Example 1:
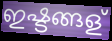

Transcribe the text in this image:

ഇഷ്ടങ്ങള്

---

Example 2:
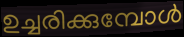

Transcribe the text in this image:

ഉച്ചരിക്കുമ്പോൾ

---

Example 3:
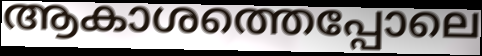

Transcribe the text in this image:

ആകാശത്തെപ്പോലെ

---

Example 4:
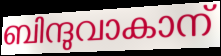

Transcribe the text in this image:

ബിന്ദുവാകാന്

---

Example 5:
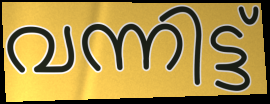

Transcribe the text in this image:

വന്നിട്ട്